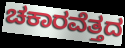
ಚಕಾರವೆತ್ತದ